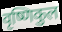
वृष्णिकुल